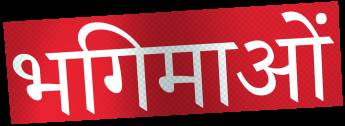
भगिमाओं